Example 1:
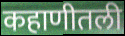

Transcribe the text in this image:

कहाणीतली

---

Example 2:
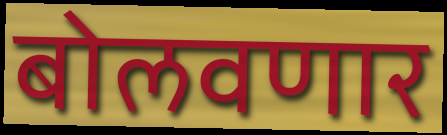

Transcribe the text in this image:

बोलवणार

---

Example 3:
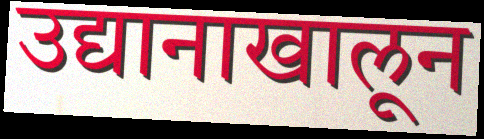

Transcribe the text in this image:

उद्यानाखालून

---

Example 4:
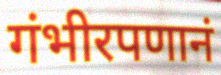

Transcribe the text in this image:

गंभीरपणानं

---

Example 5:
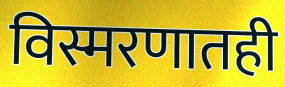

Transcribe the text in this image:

विस्मरणातही